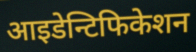
आइडेन्टिफिकेशन